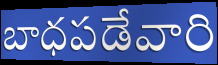
బాధపడేవారి